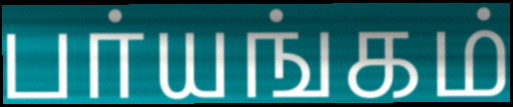
பர்யங்கம்